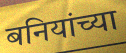
बनियांच्या